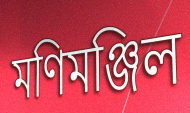
মণিমঞ্জিল